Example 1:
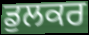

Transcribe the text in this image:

ਡੁਲਕਰ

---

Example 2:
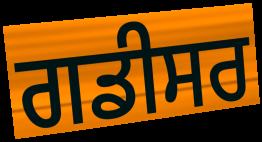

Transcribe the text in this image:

ਗਡੀਸਰ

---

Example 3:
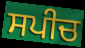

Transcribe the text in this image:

ਸਪੀਚ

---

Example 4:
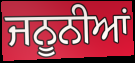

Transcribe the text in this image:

ਜਨੂਨੀਆਂ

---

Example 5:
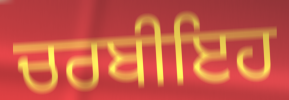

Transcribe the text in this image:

ਚਰਬੀਇਹ